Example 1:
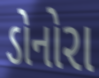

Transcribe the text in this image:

ડોનોરા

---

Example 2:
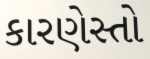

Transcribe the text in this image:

કારણેસ્તો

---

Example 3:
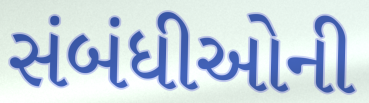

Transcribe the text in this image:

સંબંધીઓની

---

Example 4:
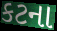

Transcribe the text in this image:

કટના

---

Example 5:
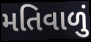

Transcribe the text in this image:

મતિવાળું